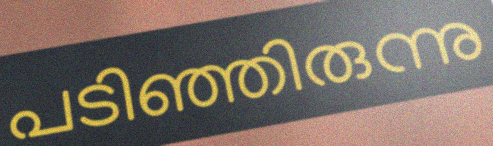
പടിഞ്ഞിരുന്നു